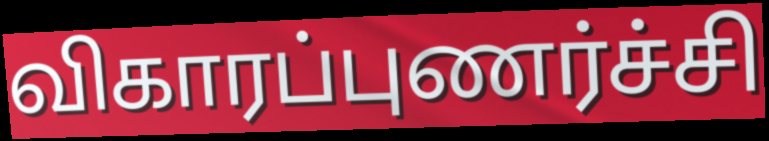
விகாரப்புணர்ச்சி